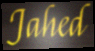
Jahed